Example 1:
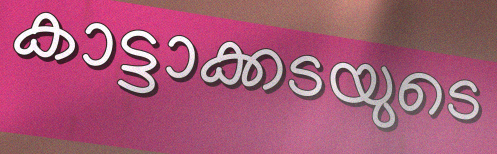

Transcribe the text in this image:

കാട്ടാക്കടയുടെ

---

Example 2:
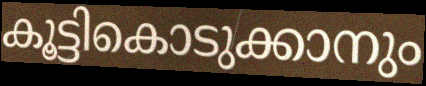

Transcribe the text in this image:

കൂട്ടികൊടുക്കാനും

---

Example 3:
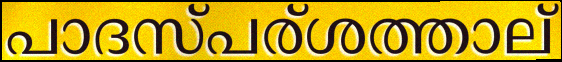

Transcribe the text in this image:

പാദസ്പര്ശത്താല്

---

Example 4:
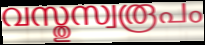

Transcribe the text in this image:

വസ്തുസ്വരൂപം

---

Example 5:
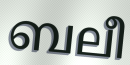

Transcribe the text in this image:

ബലീ